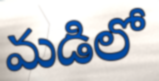
మడిలో